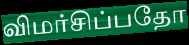
விமர்சிப்பதோ